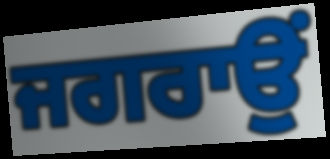
ਜਗਰਾਉਂ